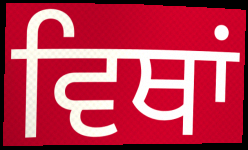
ਵਿਥਾਂ